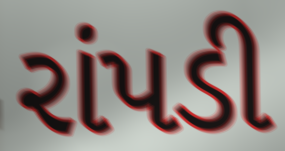
રાંપડી